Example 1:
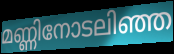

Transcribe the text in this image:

മണ്ണിനോടലിഞ്ഞ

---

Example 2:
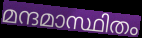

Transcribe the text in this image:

മന്ദമാസ്ഥിതം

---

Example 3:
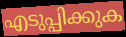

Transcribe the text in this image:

എടുപ്പിക്കുക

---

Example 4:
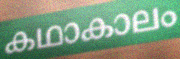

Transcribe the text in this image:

കഥാകാലം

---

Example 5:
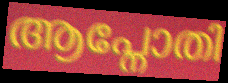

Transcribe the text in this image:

ആപ്നോതി